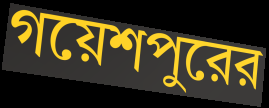
গয়েশপুরের